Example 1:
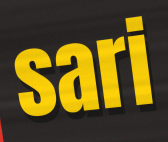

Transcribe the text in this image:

sari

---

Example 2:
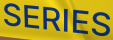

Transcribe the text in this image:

SERIES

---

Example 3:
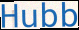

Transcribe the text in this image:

Hubb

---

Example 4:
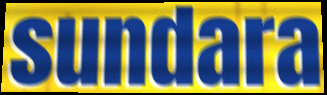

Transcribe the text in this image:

sundara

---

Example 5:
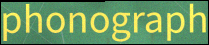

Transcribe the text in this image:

phonograph